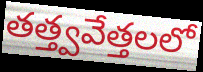
తత్త్వవేత్తలలో